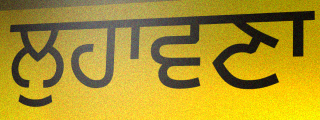
ਲੁਹਾਵਣਾ